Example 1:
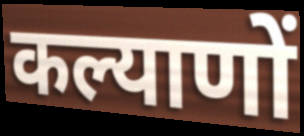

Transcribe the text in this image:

कल्याणों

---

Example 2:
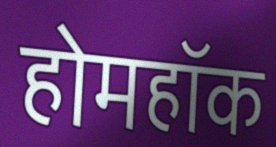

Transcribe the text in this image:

होमहॉक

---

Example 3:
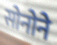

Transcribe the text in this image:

सोनोने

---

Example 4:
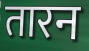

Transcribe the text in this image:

तारन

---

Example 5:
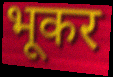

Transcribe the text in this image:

भूकर